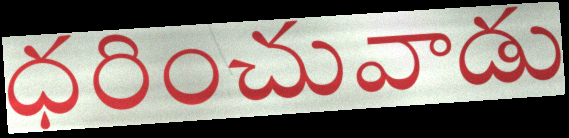
ధరించువాడు